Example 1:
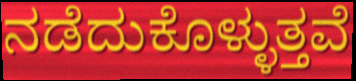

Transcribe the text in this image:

ನಡೆದುಕೊಳ್ಳುತ್ತವೆ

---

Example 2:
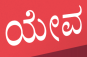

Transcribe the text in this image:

ಯೇವ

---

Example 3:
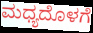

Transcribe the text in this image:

ಮಧ್ಯದೊಳಗೆ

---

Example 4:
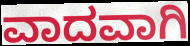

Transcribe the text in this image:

ವಾದವಾಗಿ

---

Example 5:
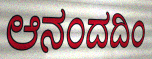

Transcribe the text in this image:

ಆನಂದದಿಂ